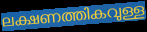
ലക്ഷണത്തികവുള്ള